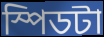
স্পিডটা